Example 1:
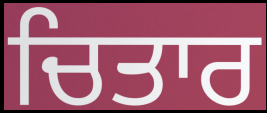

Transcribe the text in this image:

ਚਿਤਾਰ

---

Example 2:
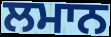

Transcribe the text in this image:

ਲਮਾਨ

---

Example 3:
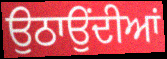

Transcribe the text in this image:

ਉਠਾਉਂਦੀਆਂ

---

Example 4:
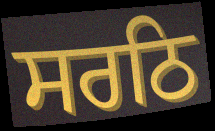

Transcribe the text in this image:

ਸਰਠਿ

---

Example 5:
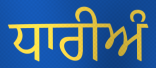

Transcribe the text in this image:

ਧਾਰੀਅੰ